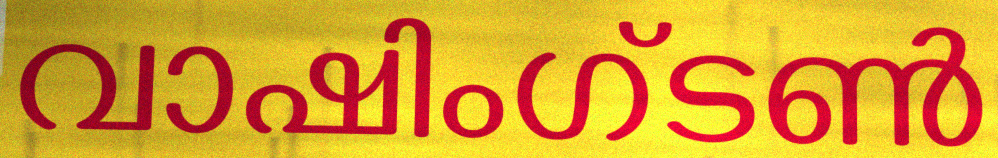
വാഷിംഗ്ടൺ